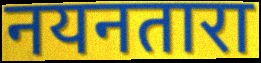
नयनतारा